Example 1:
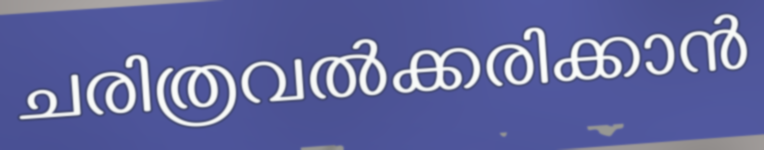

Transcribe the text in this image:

ചരിത്രവൽക്കരിക്കാൻ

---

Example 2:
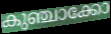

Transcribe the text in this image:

കുഞ്ചാക്കോ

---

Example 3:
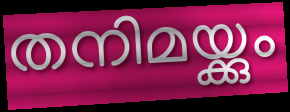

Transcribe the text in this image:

തനിമയ്ക്കും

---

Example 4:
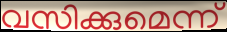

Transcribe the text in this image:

വസിക്കുമെന്ന്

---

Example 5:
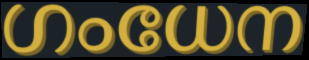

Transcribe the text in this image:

ഗംധേന